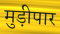
मुड़ीपार